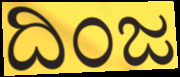
ದಿಂಜ